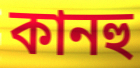
কানহু